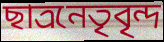
ছাত্রনেতৃবৃন্দ